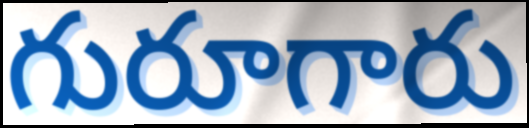
గురూగారు